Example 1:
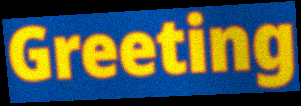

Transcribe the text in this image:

Greeting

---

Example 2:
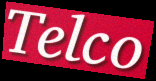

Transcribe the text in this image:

Telco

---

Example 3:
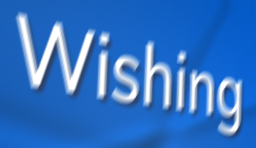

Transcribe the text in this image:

Wishing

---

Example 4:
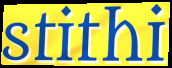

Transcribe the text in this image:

stithi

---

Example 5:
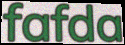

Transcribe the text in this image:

fafda